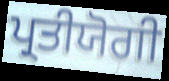
ਪ੍ਰਤੀਯੋਗੀ